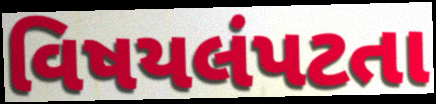
વિષયલંપટતા